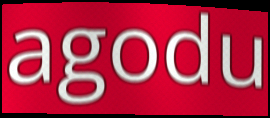
agodu